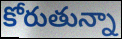
కోరుతున్నా